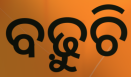
ବଢ଼ୁଚି